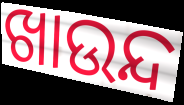
ଖାଉନ୍ଦ